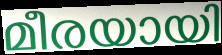
മീരയായി